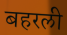
बहरली